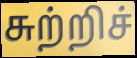
சுற்றிச்